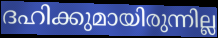
ദഹിക്കുമായിരുന്നില്ല